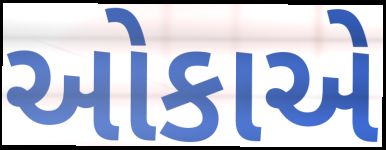
ઓકાએ